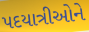
પદયાત્રીઓને